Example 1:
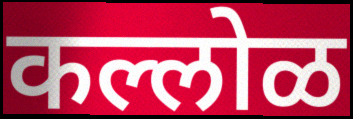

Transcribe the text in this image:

कल्लोळ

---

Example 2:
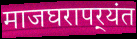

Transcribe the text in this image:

माजघरापर्यंत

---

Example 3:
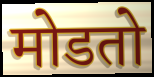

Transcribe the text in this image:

मोडतो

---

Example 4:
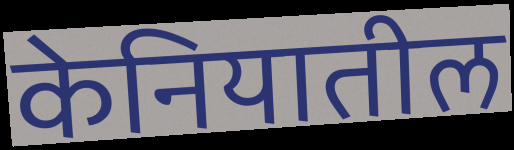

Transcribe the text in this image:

केनियातील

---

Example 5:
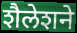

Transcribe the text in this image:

शैलेशने